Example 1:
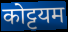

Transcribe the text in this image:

कोट्टयम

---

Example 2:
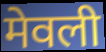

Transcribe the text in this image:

मेवली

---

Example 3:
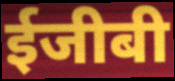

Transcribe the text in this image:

ईजीबी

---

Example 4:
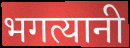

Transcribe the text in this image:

भगत्यानी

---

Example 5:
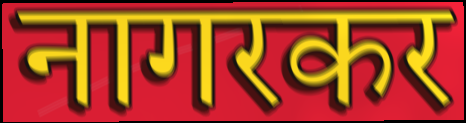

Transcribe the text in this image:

नागरकर